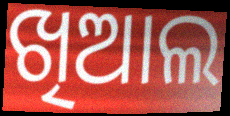
ଖିଆଲ